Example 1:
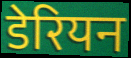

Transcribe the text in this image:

डेरियन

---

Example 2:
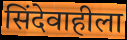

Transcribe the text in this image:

सिंदेवाहीला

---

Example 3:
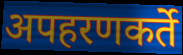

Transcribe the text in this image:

अपहरणकर्ते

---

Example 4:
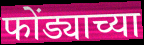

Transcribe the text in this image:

फोंड्याच्या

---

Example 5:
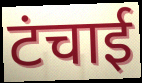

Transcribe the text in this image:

टंचाई